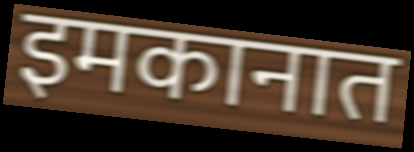
इमकानात